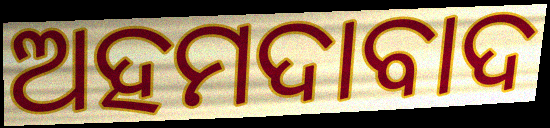
ଅହମଦାବାଦ